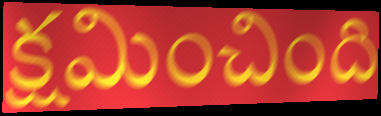
క్షమించింది